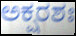
ಅಕ್ಷರಶಃ